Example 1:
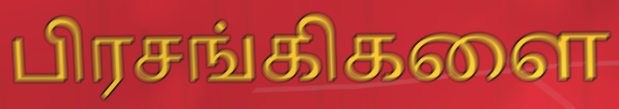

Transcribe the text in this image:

பிரசங்கிகளை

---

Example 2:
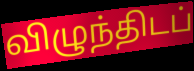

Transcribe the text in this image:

விழுந்திடப்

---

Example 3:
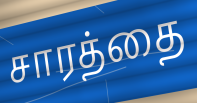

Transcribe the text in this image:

சாரத்தை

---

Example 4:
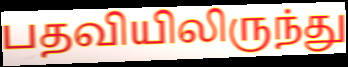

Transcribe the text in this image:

பதவியிலிருந்து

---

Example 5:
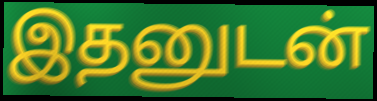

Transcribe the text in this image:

இதனுடன்